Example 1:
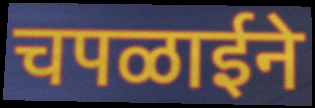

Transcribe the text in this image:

चपळाईने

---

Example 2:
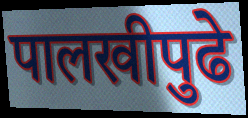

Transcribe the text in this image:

पालखीपुढे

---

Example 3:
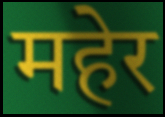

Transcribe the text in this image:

महेर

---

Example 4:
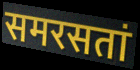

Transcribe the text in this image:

समरसतां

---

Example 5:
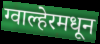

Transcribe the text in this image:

ग्वाल्हेरमधून